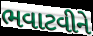
ભવાટવીને